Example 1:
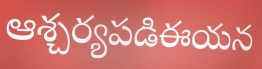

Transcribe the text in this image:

ఆశ్చర్యపడిఈయన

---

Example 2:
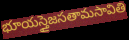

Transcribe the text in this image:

భూయస్తైజసతామసావితి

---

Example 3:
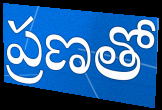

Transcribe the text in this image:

ప్రణతో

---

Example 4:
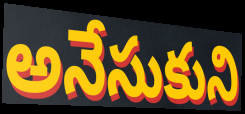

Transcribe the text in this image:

అనేసుకుని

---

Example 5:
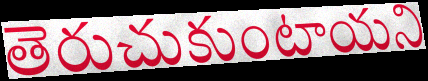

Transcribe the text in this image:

తెరుచుకుంటాయని